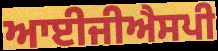
ਆਈਜੀਐਸਪੀ